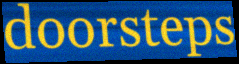
doorsteps